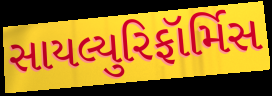
સાયલ્યુરિફૉર્મિસ